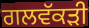
ਗਲਵੱਕੜੀ